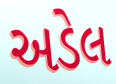
અડેલ